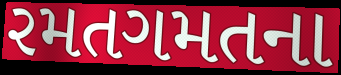
રમતગમતના